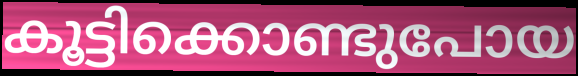
കൂട്ടിക്കൊണ്ടുപോയ